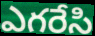
ఎగరేసి